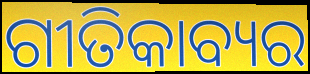
ଗୀତିକାବ୍ୟର